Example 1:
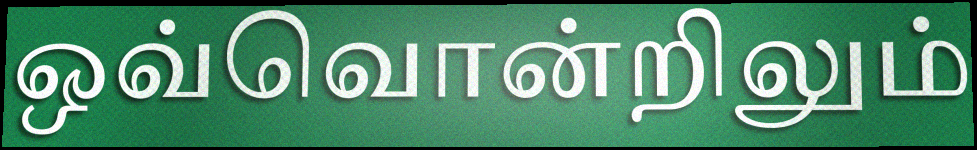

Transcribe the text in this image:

ஒவ்வொன்றிலும்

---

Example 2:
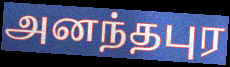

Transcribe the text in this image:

அனந்தபுர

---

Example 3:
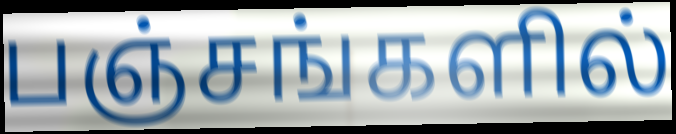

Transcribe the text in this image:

பஞ்சங்களில்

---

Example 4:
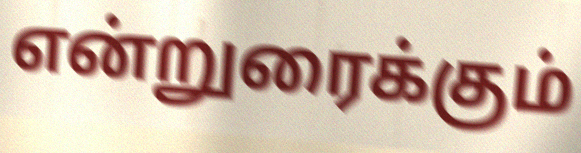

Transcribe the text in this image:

என்றுரைக்கும்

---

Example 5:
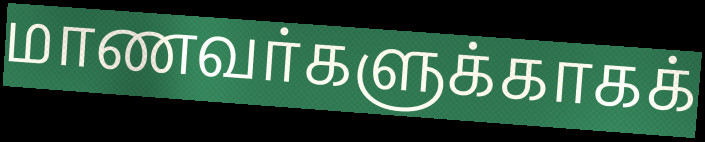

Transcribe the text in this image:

மாணவர்களுக்காகக்